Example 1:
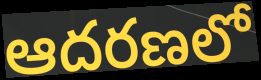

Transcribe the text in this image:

ఆదరణలో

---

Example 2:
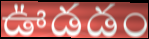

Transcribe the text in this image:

ఊడడం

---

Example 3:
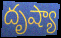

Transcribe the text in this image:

దృష్యా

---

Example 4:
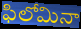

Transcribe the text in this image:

ఫిలోమినా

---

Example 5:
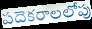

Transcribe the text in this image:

పదెకరాలలోపు